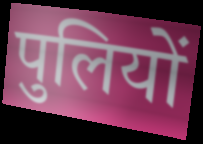
पुलियों